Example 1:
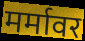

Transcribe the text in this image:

मर्मावर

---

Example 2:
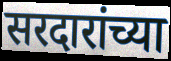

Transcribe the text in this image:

सरदारांच्या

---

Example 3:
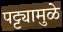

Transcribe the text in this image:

पट्ट्यामुळे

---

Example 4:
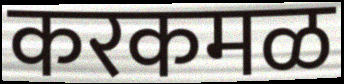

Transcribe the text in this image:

करकमळ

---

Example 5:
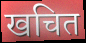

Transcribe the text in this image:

खचित